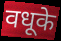
वधूके